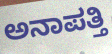
ಅನಾಪತ್ತಿ